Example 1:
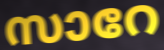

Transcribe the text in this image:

സാറേ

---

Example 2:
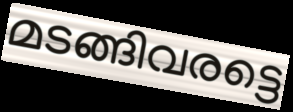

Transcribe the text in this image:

മടങ്ങിവരട്ടെ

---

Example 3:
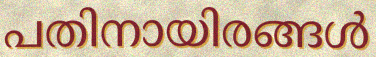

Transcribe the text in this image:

പതിനായിരങ്ങൾ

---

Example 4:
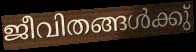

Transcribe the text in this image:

ജീവിതങ്ങൾക്കു്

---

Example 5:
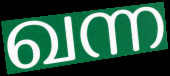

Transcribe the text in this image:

ഖന്ന